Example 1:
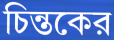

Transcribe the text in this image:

চিন্তকের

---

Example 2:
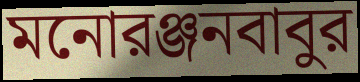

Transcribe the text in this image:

মনোরঞ্জনবাবুর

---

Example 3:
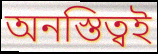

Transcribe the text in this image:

অনস্তিত্বই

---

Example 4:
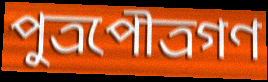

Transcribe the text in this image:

পুত্রপৌত্রগণ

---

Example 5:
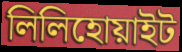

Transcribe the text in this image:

লিলিহোয়াইট